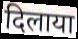
दिलाया